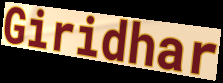
Giridhar